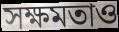
সক্ষমতাও